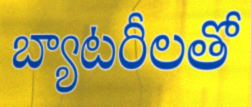
బ్యాటరీలతో